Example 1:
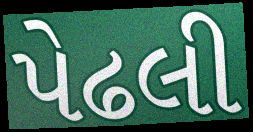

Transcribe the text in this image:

પેઢલી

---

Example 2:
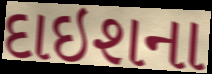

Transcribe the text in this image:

દાઇશના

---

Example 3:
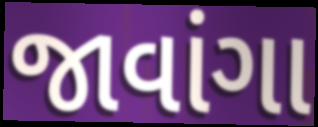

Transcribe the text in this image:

જાવાંગા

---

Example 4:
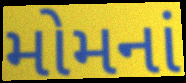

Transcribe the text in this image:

મોમનાં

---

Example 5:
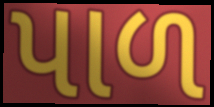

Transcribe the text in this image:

પાળ